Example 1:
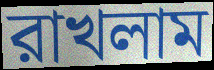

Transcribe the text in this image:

রাখলাম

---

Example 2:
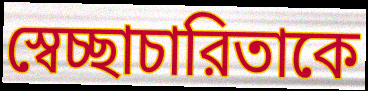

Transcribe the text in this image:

স্বেচ্ছাচারিতাকে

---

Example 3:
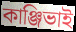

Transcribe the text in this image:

কাঞ্জিভাই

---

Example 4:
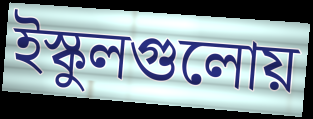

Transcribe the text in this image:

ইস্কুলগুলোয়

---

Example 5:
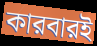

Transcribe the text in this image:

কারবারই